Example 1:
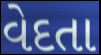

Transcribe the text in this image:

વેદતા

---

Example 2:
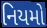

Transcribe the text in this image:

નિયમો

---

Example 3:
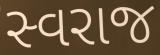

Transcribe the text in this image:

સ્વરાજ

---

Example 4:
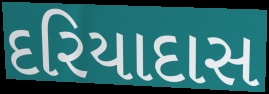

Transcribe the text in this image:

દરિયાદાસ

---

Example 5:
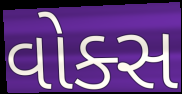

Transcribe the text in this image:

વોક્સ